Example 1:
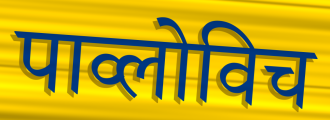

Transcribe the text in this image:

पाव्लोविच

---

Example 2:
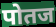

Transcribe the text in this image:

पोतज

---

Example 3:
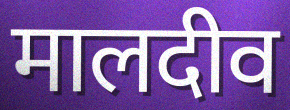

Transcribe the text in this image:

मालदीव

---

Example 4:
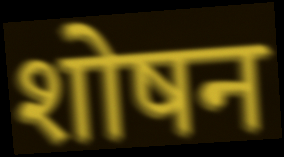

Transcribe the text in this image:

शोषन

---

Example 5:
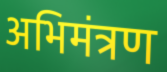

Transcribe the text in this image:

अभिमंत्रण